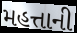
મહત્તાની